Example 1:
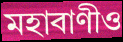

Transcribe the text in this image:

মহাবাণীও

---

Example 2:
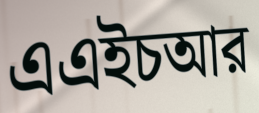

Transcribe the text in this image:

এএইচআর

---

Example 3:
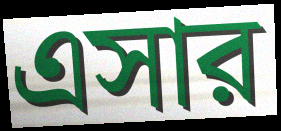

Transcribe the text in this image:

এসার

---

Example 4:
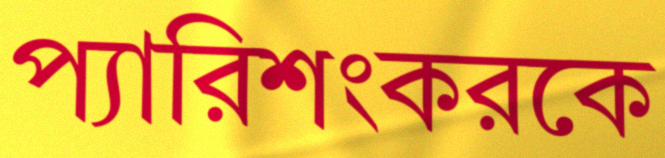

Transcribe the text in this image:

প্যারিশংকরকে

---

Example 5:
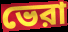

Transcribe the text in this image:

ভেরা